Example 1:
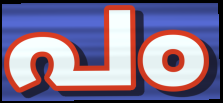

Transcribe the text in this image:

പം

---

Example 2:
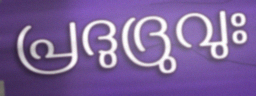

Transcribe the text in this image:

പ്രദുദ്രുവുഃ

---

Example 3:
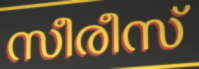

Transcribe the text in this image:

സീരീസ്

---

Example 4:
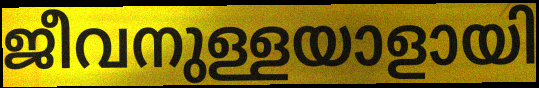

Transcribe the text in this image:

ജീവനുള്ളയാളായി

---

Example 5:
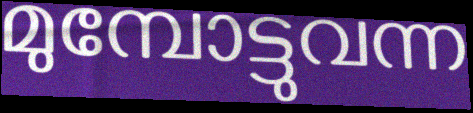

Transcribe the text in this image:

മുമ്പോട്ടുവന്ന